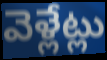
వెళ్లేట్లు